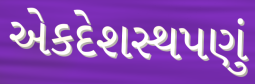
એકદેશસ્થપણું